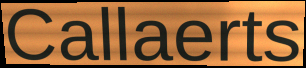
Callaerts